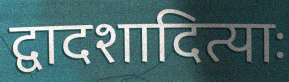
द्वादशादित्याः